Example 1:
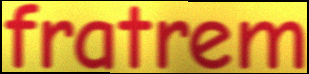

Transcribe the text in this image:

fratrem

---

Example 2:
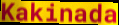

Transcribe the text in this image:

Kakinada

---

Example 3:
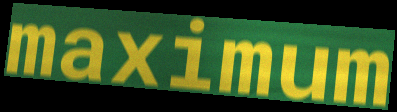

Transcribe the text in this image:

maximum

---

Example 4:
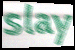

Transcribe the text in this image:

slay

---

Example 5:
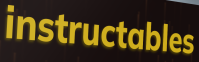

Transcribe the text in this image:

instructables